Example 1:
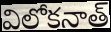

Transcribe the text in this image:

విలోకనాత్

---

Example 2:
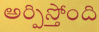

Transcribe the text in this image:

అర్పిస్తోంది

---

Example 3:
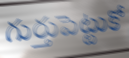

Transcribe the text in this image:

గుర్తుపెట్టుకో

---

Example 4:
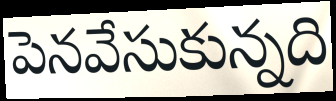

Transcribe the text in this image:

పెనవేసుకున్నది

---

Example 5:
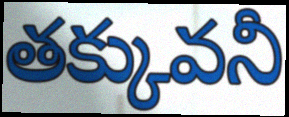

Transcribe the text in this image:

తక్కువనీ